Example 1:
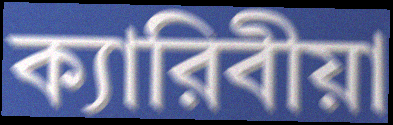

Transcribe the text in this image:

ক্যারিবীয়া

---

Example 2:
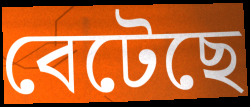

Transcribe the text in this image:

বেটেছে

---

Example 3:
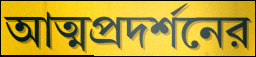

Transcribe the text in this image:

আত্মপ্রদর্শনের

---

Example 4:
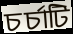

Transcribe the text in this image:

চর্চাটি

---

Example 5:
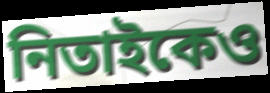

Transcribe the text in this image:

নিতাইকেও